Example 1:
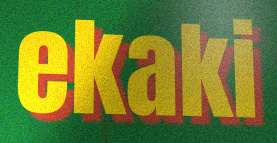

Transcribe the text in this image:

ekaki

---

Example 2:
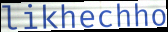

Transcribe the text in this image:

likhechho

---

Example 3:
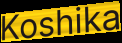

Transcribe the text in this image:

Koshika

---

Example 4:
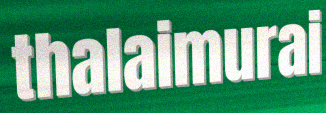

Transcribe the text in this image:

thalaimurai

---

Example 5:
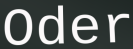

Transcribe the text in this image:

Oder